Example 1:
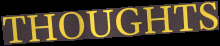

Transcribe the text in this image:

THOUGHTS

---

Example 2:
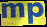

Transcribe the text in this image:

mp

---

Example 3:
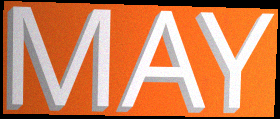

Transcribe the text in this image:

MAY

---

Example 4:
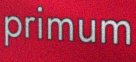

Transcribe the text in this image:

primum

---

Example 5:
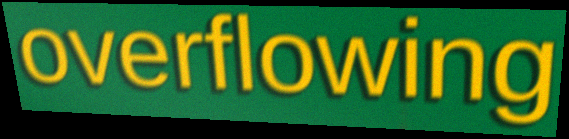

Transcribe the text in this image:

overflowing